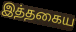
இத்தகைய